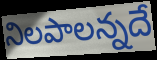
నిలపాలన్నదే